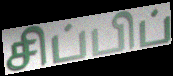
சிப்பிப்